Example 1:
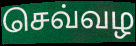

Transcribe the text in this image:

செவ்வழ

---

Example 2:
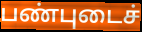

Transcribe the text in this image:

பண்புடைச்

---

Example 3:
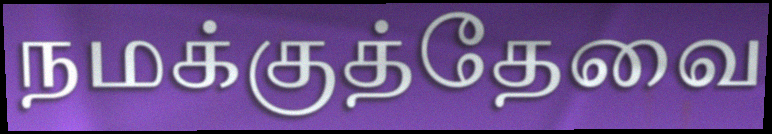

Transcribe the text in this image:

நமக்குத்தேவை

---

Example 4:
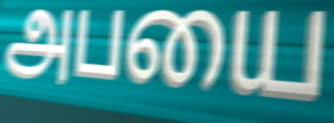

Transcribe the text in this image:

அபயை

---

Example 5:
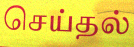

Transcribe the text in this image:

செய்தல்